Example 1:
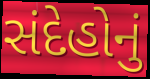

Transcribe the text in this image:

સંદેહોનું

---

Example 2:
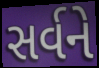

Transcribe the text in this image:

સર્વને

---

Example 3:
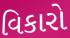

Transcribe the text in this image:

વિકારો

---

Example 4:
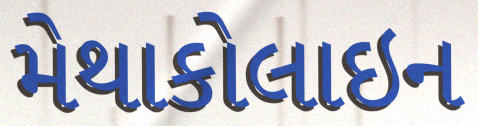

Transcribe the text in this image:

મેથાકોલાઇન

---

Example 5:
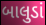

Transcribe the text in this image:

બાલુડાં